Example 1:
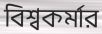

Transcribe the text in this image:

বিশ্বকর্মার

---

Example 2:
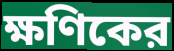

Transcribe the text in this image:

ক্ষণিকের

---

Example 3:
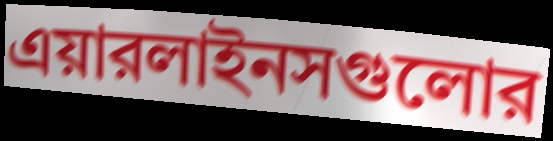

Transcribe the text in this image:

এয়ারলাইনসগুলোর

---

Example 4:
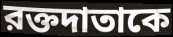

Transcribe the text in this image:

রক্তদাতাকে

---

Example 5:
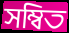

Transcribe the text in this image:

সম্বিত